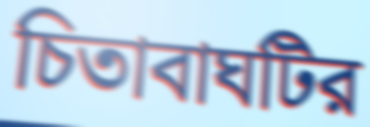
চিতাবাঘটির